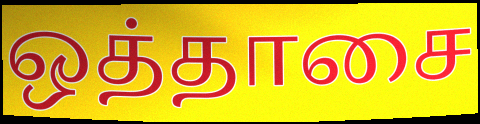
ஒத்தாசை